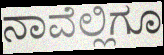
ನಾವೆಲ್ಲಿಗೂ